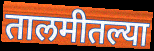
तालमीतल्या